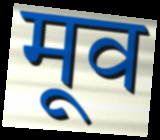
मूव